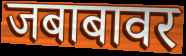
जबाबावर